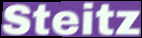
Steitz